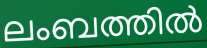
ലംബത്തിൽ